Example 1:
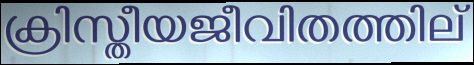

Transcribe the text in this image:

ക്രിസ്തീയജീവിതത്തില്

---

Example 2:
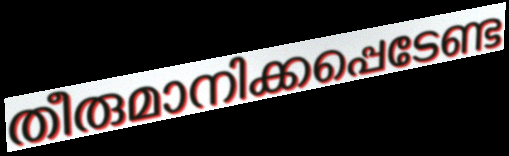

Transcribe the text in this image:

തീരുമാനിക്കപ്പെടേണ്ട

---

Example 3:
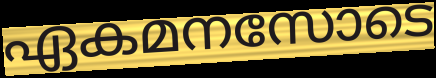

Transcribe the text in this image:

ഏകമനസോടെ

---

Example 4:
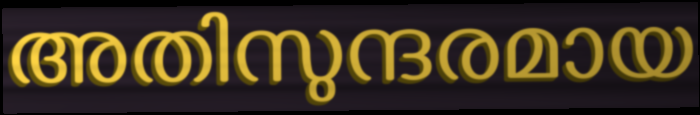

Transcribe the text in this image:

അതിസുന്ദരമായ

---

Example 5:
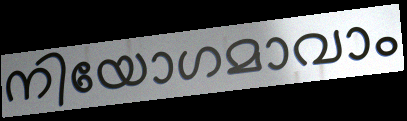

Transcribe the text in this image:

നിയോഗമാവാം